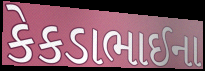
કેકડાભાઈના